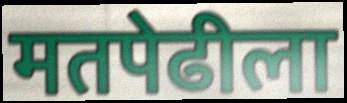
मतपेढीला